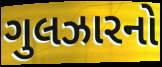
ગુલઝારનો